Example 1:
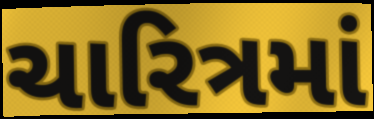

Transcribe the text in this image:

ચારિત્રમાં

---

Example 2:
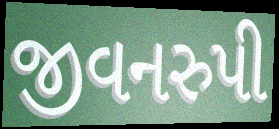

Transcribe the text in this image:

જીવનરુપી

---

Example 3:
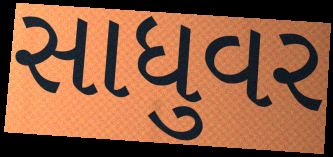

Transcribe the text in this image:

સાધુવર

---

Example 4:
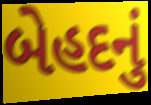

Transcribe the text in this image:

બેહદનું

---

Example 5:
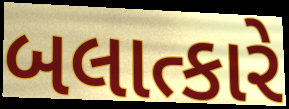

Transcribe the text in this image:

બલાત્કારે